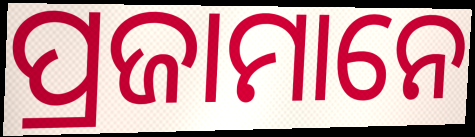
ପ୍ରଜାମାନେ